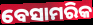
ବେସାମରିକ